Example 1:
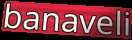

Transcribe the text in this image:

banaveli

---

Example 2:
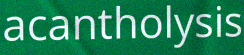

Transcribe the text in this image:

acantholysis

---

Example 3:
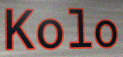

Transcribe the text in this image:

Kolo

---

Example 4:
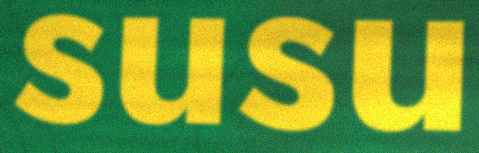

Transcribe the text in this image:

susu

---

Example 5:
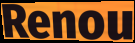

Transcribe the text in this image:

Renou